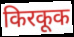
किरकूक